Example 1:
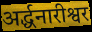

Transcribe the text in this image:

अर्द्धनारीश्वर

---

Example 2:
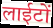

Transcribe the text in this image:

लाईटों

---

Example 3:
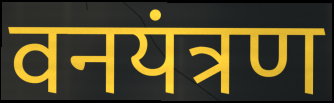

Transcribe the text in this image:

वनयंत्रण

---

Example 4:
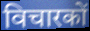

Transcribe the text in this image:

विचारकों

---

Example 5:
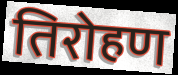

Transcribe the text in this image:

तिरोहण